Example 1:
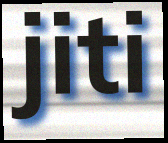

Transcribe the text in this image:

jiti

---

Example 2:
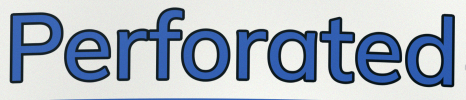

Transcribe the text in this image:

Perforated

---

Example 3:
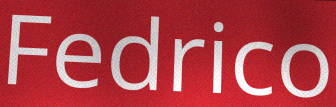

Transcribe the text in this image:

Fedrico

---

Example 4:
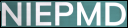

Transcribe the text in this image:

NIEPMD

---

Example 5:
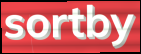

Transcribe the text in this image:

sortby